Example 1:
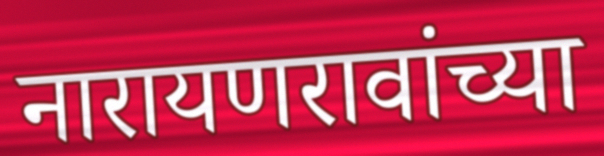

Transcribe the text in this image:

नारायणरावांच्या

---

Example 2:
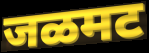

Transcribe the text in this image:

जळमट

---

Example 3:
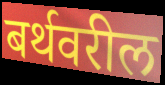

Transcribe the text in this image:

बर्थवरील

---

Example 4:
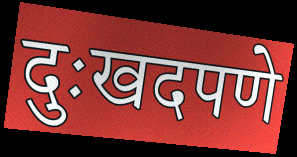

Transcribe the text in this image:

दुःखदपणे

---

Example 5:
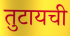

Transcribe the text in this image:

तुटायची